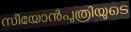
സീയോൻപുത്രിയുടെ